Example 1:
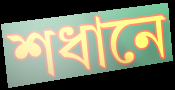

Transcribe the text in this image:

শধানে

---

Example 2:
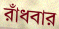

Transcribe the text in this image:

রাঁধবার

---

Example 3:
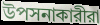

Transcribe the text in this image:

উপসনাকারীরা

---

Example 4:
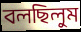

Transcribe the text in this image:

বলছিলুম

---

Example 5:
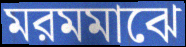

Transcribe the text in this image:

মরমমাঝে